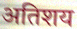
अतिशय